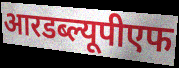
आरडब्ल्यूपीएफ